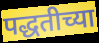
पद्धतीच्या